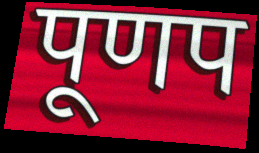
पूणप